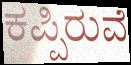
ಕಪ್ಪಿರುವೆ